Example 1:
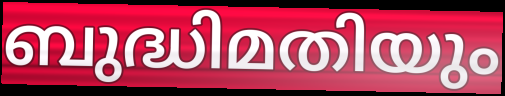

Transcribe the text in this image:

ബുദ്ധിമതിയും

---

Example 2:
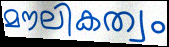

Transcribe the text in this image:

മൗലികത്വം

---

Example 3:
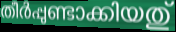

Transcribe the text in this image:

തീർപ്പുണ്ടാക്കിയതു്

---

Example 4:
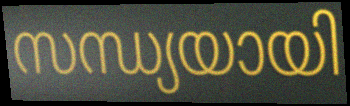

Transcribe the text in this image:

സന്ധ്യയായി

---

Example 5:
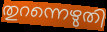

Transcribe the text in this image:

തുറന്നെഴുതി